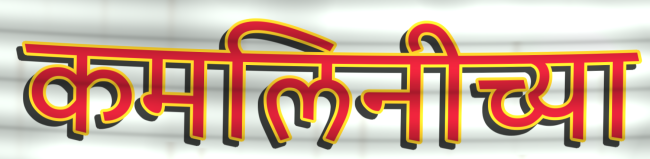
कमलिनीच्या